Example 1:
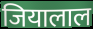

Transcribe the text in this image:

जियालाल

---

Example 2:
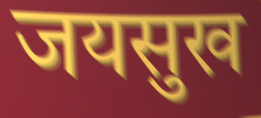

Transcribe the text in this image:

जयसुख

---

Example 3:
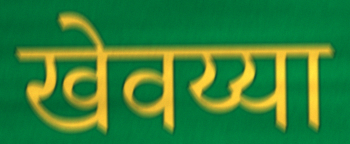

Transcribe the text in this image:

खेवय्या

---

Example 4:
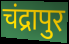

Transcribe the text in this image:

चंद्रापुर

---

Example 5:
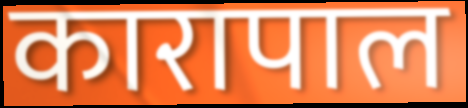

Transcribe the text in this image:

कारापाल